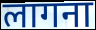
लागना